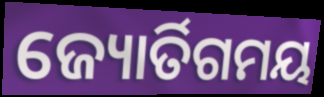
ଜ୍ୟୋର୍ତିଗମୟ